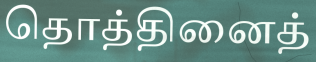
தொத்தினைத்